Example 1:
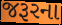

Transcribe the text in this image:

જરૂરના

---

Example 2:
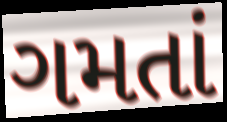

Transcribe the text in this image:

ગમતાં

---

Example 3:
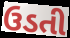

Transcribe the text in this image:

ઉડતી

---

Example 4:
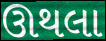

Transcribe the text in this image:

ઊથલા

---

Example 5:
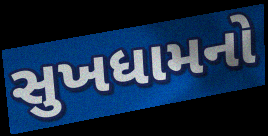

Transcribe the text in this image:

સુખધામનો